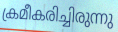
ക്രമീകരിച്ചിരുന്നു